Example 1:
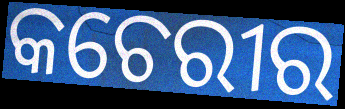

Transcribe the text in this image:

କଚେରୀର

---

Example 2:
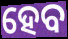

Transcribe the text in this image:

ହେବ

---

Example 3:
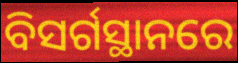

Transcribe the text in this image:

ବିସର୍ଗସ୍ଥାନରେ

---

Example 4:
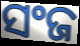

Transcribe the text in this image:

ସଂଜ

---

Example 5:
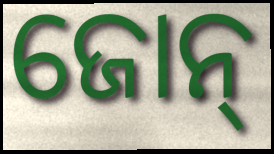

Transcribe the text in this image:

ଜୋନ୍